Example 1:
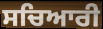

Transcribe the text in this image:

ਸਚਿਆਰੀ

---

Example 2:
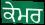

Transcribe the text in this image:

ਕੇਮਰ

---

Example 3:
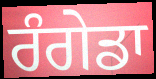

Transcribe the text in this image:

ਰੰਗੇਡਾ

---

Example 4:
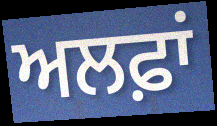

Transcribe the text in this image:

ਅਲਫ਼ਾਂ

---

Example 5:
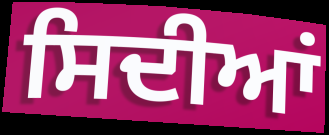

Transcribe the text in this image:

ਸਿਦੀਆਂ